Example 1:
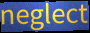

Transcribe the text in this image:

neglect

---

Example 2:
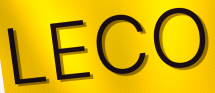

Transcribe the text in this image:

LECO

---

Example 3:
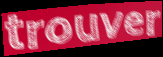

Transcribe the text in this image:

trouver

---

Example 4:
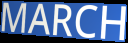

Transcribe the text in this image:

MARCH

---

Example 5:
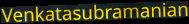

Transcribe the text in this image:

Venkatasubramanian